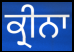
ਕ੍ਰੀਨਾ